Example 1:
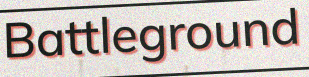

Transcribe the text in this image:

Battleground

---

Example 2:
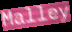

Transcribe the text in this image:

Malley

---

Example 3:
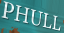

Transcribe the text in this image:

PHULL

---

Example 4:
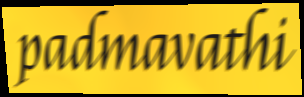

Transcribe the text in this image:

padmavathi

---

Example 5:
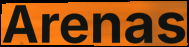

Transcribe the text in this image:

Arenas